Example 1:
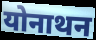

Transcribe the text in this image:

योनाथन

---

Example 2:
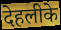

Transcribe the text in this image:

देहलीके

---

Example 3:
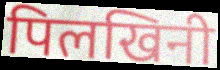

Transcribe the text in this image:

पिलखिनी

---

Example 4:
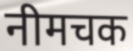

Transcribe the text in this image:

नीमचक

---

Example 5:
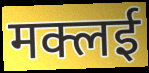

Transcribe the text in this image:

मक्लई